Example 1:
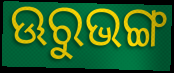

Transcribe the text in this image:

ଊରୁଭଙ୍ଗ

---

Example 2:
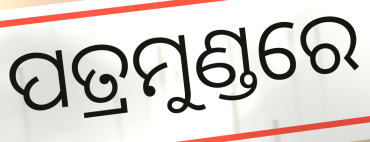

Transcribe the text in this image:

ପତ୍ରମୁଣ୍ଡରେ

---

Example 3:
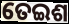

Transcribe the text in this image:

ତେଇଶ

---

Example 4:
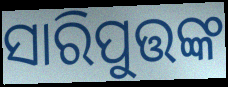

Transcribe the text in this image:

ସାରିପୁତ୍ତଙ୍କ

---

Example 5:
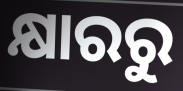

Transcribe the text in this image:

କ୍ଷାରରୁ